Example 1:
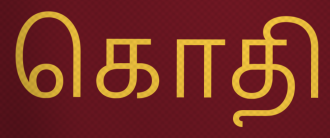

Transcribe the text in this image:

கொதி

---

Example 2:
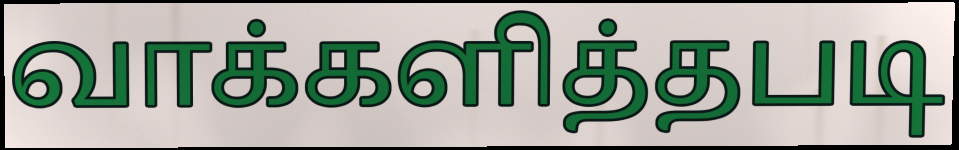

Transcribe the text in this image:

வாக்களித்தபடி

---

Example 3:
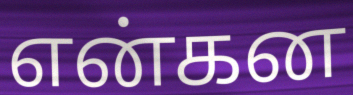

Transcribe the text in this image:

என்கன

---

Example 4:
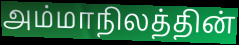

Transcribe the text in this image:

அம்மாநிலத்தின்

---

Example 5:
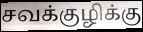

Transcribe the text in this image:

சவக்குழிக்கு